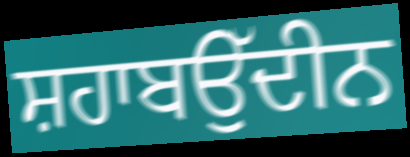
ਸ਼ਹਾਬਉੱਦੀਨ